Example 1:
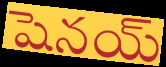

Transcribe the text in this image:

షెనయ్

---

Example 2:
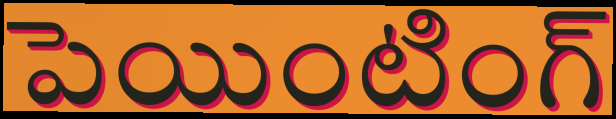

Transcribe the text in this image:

పెయింటింగ్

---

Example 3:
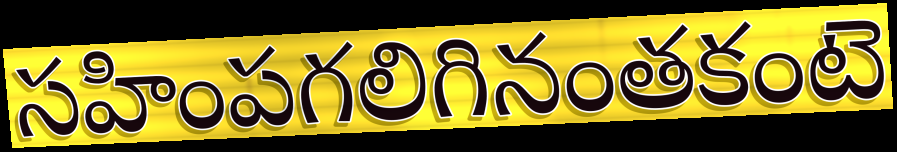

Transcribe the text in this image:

సహింపగలిగినంతకంటె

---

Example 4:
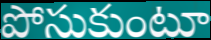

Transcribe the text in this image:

పోసుకుంటూ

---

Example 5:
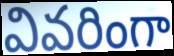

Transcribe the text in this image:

వివరింగా